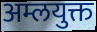
अम्लयुक्त